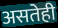
असतेही